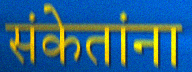
संकेतांना